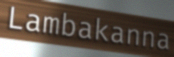
Lambakanna